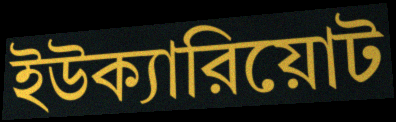
ইউক্যারিয়োট